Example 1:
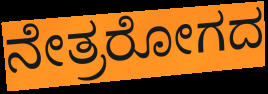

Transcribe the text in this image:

ನೇತ್ರರೋಗದ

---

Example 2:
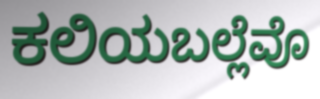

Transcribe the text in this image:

ಕಲಿಯಬಲ್ಲೆವೊ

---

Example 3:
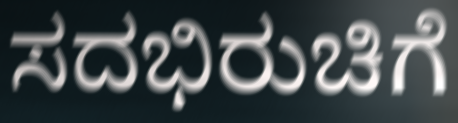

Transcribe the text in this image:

ಸದಭಿರುಚಿಗೆ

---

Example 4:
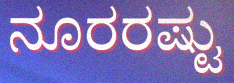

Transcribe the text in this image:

ನೂರರಷ್ಟು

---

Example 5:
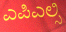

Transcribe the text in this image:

ಎಪಿಎಲ್ಸಿ